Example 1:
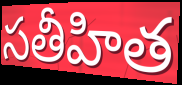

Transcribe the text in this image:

సతీహిత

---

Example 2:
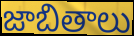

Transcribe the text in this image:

జాబితాలు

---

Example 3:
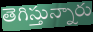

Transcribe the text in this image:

తెగిస్తున్నారు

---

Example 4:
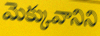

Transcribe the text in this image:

మెక్కువానిని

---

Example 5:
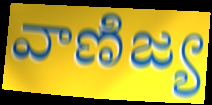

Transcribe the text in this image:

వాణిజ్య